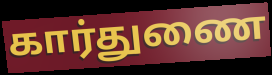
கார்துணை